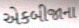
એકબીજાના